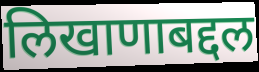
लिखाणाबद्दल